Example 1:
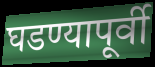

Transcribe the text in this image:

घडण्यापूर्वी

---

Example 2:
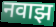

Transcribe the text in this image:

नवाझ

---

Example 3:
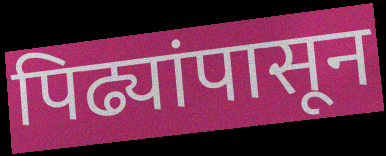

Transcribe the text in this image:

पिढ्यांपासून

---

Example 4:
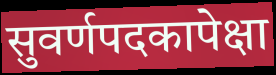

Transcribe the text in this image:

सुवर्णपदकापेक्षा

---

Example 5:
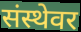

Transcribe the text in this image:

संस्थेवर